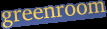
greenroom